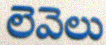
లెవెలు